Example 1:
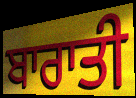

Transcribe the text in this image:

ਬਾਰਾਤੀ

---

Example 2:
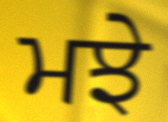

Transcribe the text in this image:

ਮਝੇ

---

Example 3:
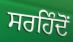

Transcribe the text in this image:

ਸਰਹਿੰਦੋਂ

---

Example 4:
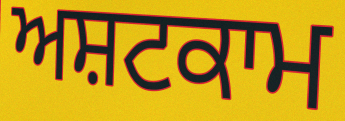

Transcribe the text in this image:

ਅਸ਼ਟਕਾਮ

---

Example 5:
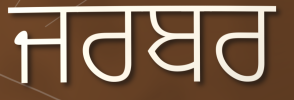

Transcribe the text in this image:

ਜਰਬਰ